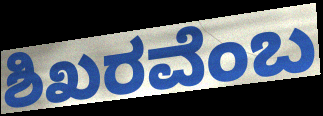
ಶಿಖರವೆಂಬ